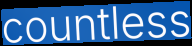
countless